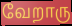
வேறாரு